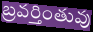
బ్రవర్తింతువు